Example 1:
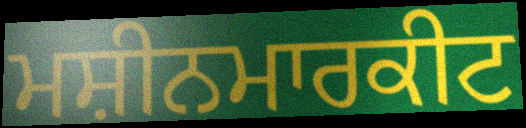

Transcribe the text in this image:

ਮਸ਼ੀਨਮਾਰਕੀਟ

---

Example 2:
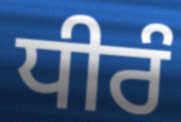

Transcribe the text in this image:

ਧੀਰੰ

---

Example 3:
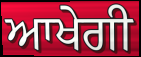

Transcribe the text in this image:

ਆਖੇਗੀ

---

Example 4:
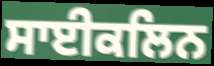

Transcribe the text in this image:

ਸਾਈਕਲਿਨ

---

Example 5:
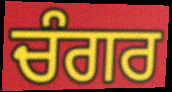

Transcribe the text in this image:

ਚੰਗਰ